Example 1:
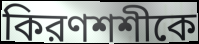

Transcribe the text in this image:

কিরণশশীকে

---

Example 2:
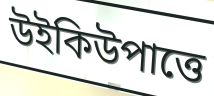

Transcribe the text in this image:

উইকিউপাত্তে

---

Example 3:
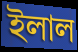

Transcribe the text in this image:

ইলাল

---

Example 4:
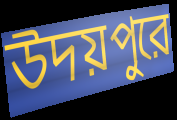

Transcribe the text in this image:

উদয়পুরে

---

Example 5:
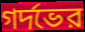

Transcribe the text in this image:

গর্দভের